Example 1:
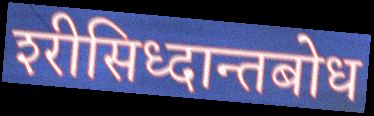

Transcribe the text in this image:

श्रीसिध्दान्तबोध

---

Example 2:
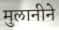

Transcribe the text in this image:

मुलानीने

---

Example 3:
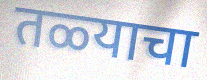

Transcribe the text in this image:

तळ्याचा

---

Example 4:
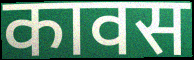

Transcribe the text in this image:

कावस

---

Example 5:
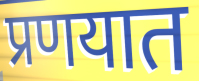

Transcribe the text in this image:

प्रणयात